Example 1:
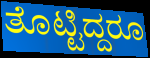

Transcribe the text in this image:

ತೊಟ್ಟಿದ್ದರೂ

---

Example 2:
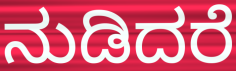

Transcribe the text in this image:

ನುಡಿದರೆ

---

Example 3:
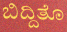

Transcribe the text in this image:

ಬಿದ್ದಿತೊ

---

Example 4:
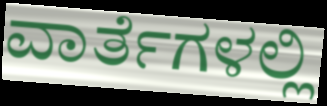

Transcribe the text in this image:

ವಾರ್ತೆಗಳಲ್ಲಿ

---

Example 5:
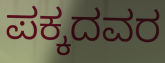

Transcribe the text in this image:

ಪಕ್ಕದವರ